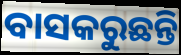
ବାସକରୁଛନ୍ତି